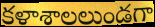
కళాశాలలుండగా